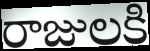
రాజులకి